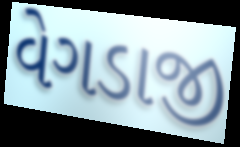
વેગડાજી